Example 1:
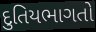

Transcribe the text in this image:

દુતિયભાગતો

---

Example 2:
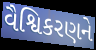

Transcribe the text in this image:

વૈશ્વિકરણને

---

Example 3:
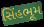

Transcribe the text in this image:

સિંહભૂમ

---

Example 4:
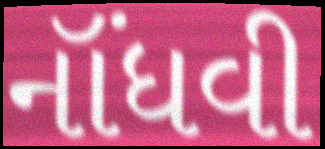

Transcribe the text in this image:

નૉંધવી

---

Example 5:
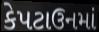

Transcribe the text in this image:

કેપટાઉનમાં